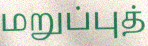
மறுப்புத்